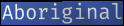
Aboriginal